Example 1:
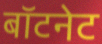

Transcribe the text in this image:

बॉटनेट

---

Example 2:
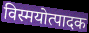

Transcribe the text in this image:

विस्मयोत्पादक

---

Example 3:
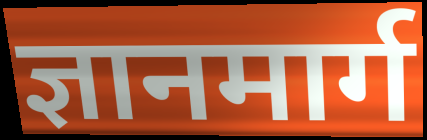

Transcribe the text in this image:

ज्ञानमार्ग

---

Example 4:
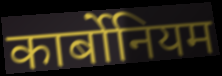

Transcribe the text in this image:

कार्बोनियम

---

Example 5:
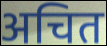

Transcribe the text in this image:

अचित